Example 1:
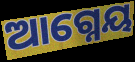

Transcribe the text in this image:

ଆଗ୍ନେୟ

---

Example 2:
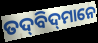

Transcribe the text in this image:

ତଦ୍‌ବିଦ୍‌ମାନେ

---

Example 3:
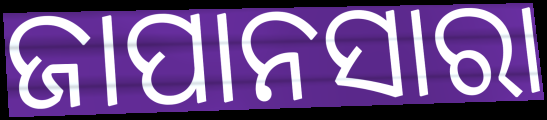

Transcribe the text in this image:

ଜାପାନସାରା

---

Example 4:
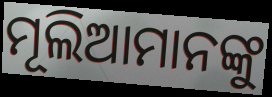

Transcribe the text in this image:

ମୂଲିଆମାନଙ୍କୁ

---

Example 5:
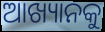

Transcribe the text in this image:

ଆଖ୍ୟାନକୁ